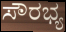
ಸೌರಭ್ಯ